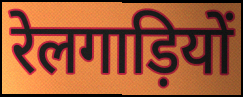
रेलगाड़ियों